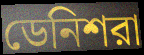
ডেনিশরা